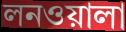
লনওয়ালা